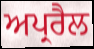
ਅਪ੍ਰਰੈਲ